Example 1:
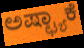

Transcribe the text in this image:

ಅಷ್ಟ್ಯಾಕೆ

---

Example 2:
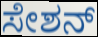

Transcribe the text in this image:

ಸೇಶನ್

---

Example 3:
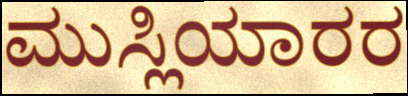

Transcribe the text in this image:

ಮುಸ್ಲಿಯಾರರ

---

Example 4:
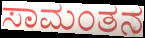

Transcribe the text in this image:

ಸಾಮಂತನ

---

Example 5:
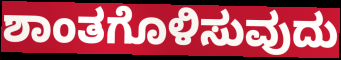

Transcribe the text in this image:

ಶಾಂತಗೊಳಿಸುವುದು